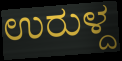
ಉರುಳ್ದ